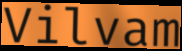
Vilvam